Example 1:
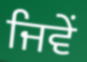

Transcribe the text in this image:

ਜਿਵੇੰ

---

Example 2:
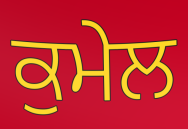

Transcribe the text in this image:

ਕੁਮੇਲ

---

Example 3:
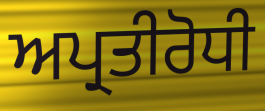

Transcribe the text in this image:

ਅਪ੍ਰਤੀਰੋਧੀ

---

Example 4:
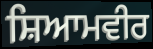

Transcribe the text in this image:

ਸ਼ਿਆਮਵੀਰ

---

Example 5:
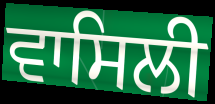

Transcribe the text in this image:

ਵਾਸਿਲੀ